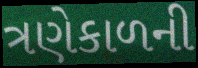
ત્રણેકાળની